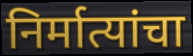
निर्मात्यांचा